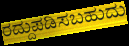
ರದ್ದುಪಡಿಸಬಹುದು